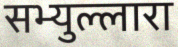
सभ्युल्लारा